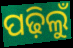
ପଢ଼ିଲୁଁ